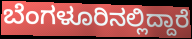
ಬೆಂಗಳೂರಿನಲ್ಲಿದ್ದಾರೆ